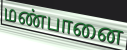
மண்பானை